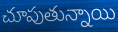
చూపుతున్నాయి